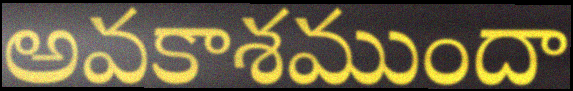
అవకాశముందా